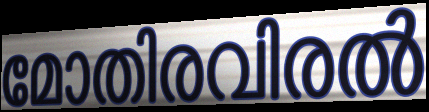
മോതിരവിരൽ